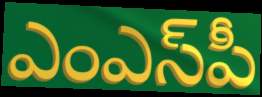
ఎంఎస్‌పీ